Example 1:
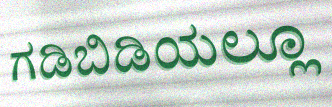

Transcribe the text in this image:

ಗಡಿಬಿಡಿಯಲ್ಲೂ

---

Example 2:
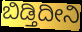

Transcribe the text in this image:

ಬಿಡ್ತಿದೀನಿ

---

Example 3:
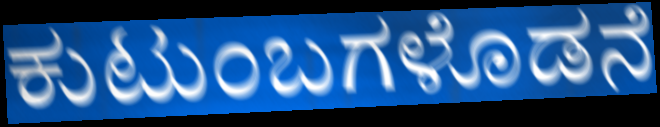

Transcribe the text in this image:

ಕುಟುಂಬಗಳೊಡನೆ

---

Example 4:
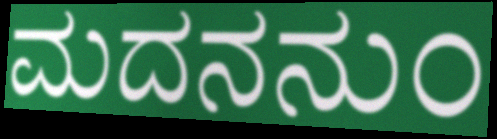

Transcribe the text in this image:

ಮದನನುಂ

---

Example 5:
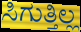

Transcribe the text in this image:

ಸಿಗುತ್ತಿಲ್ಲ